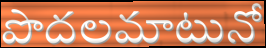
పొదలమాటునో